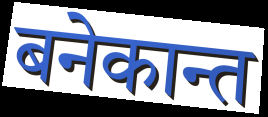
बनेकान्त